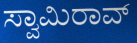
ಸ್ವಾಮಿರಾವ್